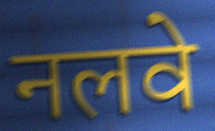
नलवे